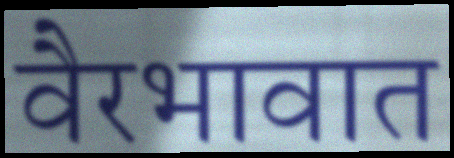
वैरभावात